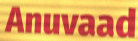
Anuvaad